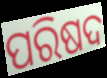
ପରିଷଦ